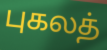
புகலத்